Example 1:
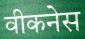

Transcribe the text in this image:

वीकनेस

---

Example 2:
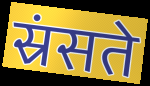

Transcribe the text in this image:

स्रंसते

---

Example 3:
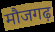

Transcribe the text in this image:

मौजगढ़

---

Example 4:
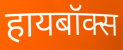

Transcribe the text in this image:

हायबॉक्स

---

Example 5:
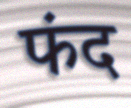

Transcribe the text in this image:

फंद